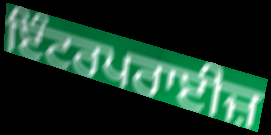
ਇੰਟਰਪਰਾਈਜ਼